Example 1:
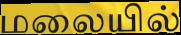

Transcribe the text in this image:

மலையில்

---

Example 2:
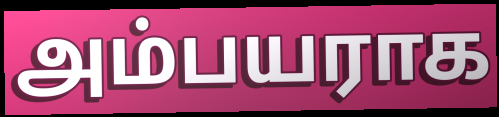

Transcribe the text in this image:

அம்பயராக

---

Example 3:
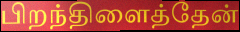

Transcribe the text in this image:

பிறந்திளைத்தேன்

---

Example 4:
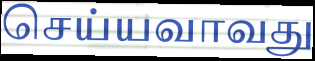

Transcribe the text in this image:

செய்யவாவது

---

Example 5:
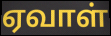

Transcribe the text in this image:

ஏவாள்